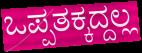
ಒಪ್ಪತಕ್ಕದ್ದಲ್ಲ